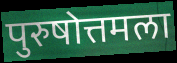
पुरुषोत्तमला